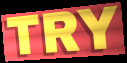
TRY